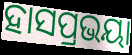
ହାସପ୍ରଭୟା